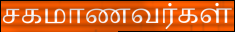
சகமாணவர்கள்